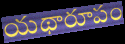
యథారూపం